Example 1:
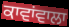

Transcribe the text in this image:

ਕਾਵਾਂਵਾਲਾ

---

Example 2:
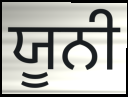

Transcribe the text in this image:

ਯੂਨੀ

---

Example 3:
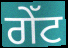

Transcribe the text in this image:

ਗੇੱਟ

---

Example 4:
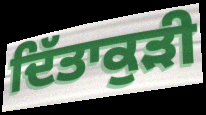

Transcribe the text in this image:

ਦਿੱਤਾਕੁੜੀ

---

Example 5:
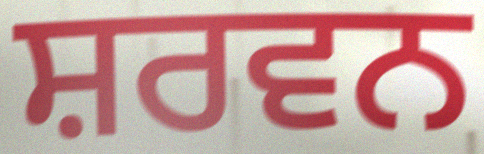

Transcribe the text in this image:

ਸ਼ਰਵਨ